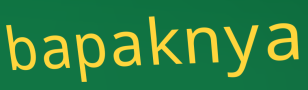
bapaknya